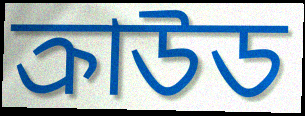
ক্রাউড